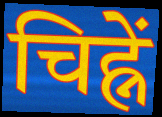
चिह्नें